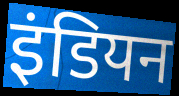
इंडियन